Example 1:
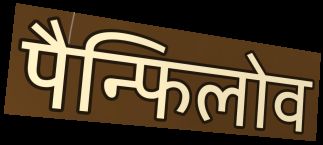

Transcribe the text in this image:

पैन्फिलोव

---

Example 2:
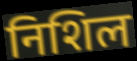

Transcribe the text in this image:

निशिल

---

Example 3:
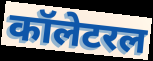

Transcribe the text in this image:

कॉलेटरल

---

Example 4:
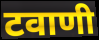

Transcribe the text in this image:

टवाणी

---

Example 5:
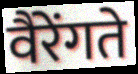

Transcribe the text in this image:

वैरेंगते